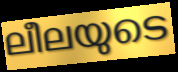
ലീലയുടെ